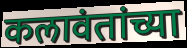
कलावंतांच्या